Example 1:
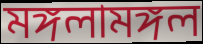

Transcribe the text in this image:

মঙ্গলামঙ্গল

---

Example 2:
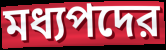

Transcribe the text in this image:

মধ্যপদের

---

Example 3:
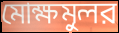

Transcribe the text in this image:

মোক্ষমুলর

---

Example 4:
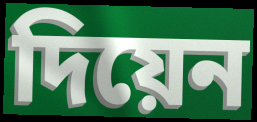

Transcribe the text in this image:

দিয়েন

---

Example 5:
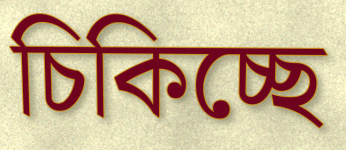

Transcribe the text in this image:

চিকিচ্ছে